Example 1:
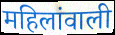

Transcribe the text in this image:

महिलांवाली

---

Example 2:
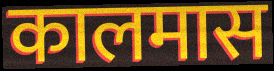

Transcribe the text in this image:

कालमास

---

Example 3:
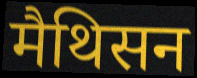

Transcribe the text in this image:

मैथिसन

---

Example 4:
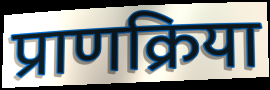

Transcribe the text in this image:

प्राणक्रिया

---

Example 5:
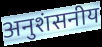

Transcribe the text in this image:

अनुशंसनीय